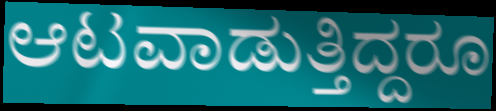
ಆಟವಾಡುತ್ತಿದ್ದರೂ